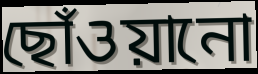
ছোঁওয়ানো